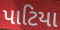
પાટિયા